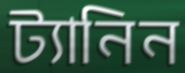
ট্যানিন